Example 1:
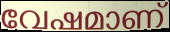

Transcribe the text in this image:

വേഷമാണ്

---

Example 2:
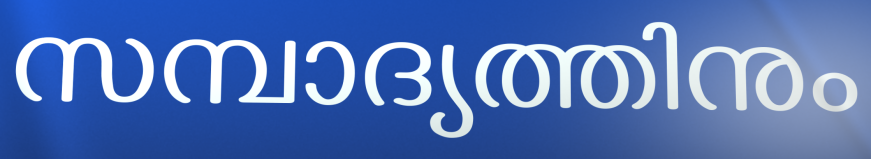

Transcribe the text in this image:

സമ്പാദ്യത്തിനും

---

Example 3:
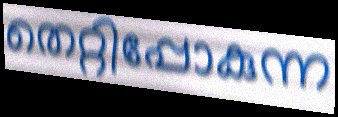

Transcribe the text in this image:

തെറ്റിപ്പോകുന്ന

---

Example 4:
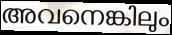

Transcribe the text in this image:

അവനെങ്കിലും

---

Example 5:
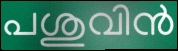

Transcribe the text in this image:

പശുവിൻ